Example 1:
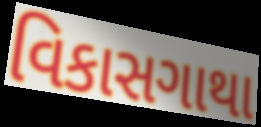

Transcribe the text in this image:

વિકાસગાથા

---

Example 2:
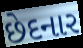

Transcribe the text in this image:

છેદનાર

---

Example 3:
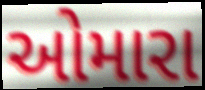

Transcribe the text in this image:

ઓમારા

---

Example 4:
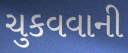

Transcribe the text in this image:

ચુકવવાની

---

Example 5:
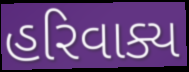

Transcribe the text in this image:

હરિવાક્ય